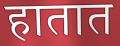
हातात